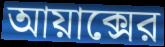
আয়াক্সের